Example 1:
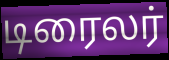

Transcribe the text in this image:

டிரைலர்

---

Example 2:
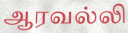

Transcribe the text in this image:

ஆரவல்லி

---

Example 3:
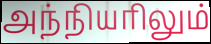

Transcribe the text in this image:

அந்நியரிலும்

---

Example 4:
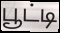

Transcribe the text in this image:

பூட்டி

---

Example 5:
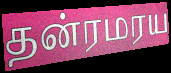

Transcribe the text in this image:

தன்ரமரய